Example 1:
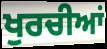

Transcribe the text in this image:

ਖੁਰਚੀਆਂ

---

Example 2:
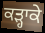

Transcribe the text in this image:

ਕੜ੍ਹਾਕੇ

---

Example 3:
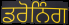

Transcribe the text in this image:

ਡਰੋਨਿੰਗ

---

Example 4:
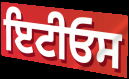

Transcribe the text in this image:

ਇਟੀਓਸ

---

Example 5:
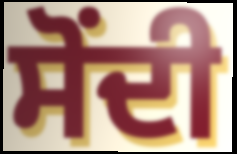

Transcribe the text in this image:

ਸੋਂਦੀ